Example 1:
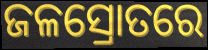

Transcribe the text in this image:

ଜଳସ୍ରୋତରେ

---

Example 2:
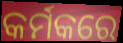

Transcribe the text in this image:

କର୍ମକରେ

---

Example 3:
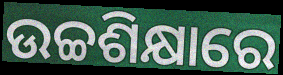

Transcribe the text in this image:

ଉଚ୍ଚଶିକ୍ଷାରେ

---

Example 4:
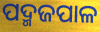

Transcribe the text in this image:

ପଦ୍ମଜପାଳ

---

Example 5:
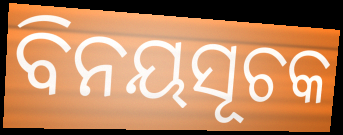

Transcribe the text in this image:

ବିନୟସୂଚକ